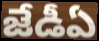
జేడీఏ